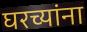
घरच्‍यांना